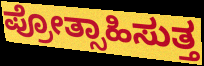
ಪ್ರೋತ್ಸಾಹಿಸುತ್ತ